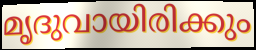
മൃദുവായിരിക്കും